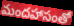
మందహాసంతో